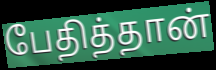
பேதித்தான்